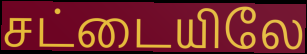
சட்டையிலே